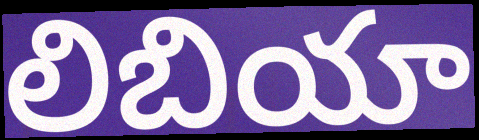
లిబియా